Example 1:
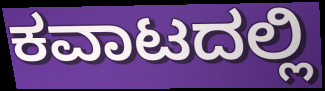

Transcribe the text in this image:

ಕವಾಟದಲ್ಲಿ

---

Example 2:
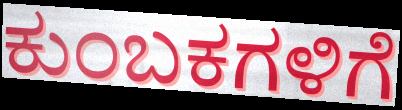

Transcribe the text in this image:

ಕುಂಬಕಗಳಿಗೆ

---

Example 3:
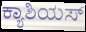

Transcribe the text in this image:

ಕ್ಯಾಶಿಯಸ್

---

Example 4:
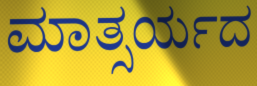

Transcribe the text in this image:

ಮಾತ್ಸರ್ಯದ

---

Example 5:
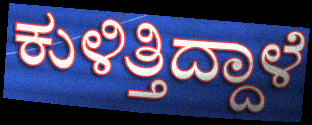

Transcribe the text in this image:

ಕುಳಿತ್ತಿದ್ದಾಳೆ